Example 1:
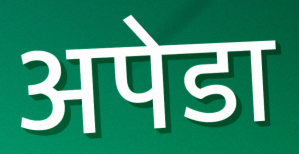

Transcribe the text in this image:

अपेडा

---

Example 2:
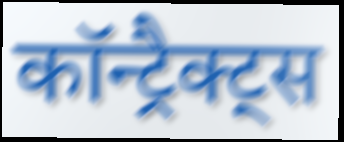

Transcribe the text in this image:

कॉन्ट्रैक्ट्स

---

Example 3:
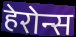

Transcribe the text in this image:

हेरोन्स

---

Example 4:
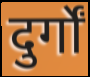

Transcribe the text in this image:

दुर्गों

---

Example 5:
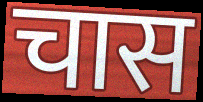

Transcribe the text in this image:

चास